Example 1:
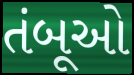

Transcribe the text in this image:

તંબૂઓ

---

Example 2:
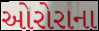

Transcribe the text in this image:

ઓરોરાના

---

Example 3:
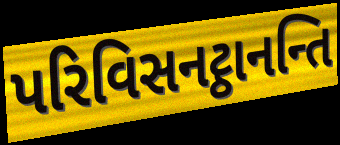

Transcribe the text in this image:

પરિવિસનટ્ઠાનન્તિ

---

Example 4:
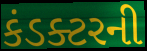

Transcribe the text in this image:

કંડક્ટરની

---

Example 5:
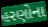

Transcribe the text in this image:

હરણોના